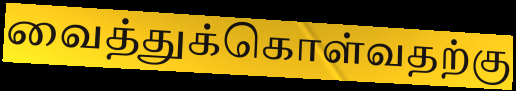
வைத்துக்கொள்வதற்கு